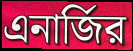
এনার্জির